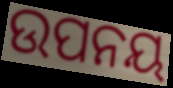
ଉପନୟ